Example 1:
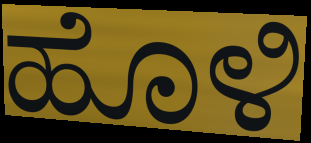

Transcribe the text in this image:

ಹೊಳಿ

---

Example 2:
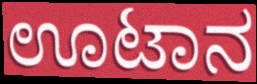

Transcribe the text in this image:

ಊಟಾನ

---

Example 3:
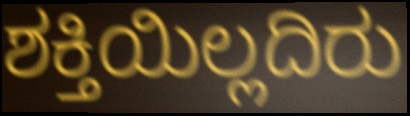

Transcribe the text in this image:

ಶಕ್ತಿಯಿಲ್ಲದಿರು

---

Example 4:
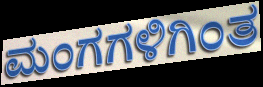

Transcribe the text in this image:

ಮಂಗಗಳಿಗಿಂತ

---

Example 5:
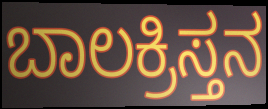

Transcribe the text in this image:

ಬಾಲಕ್ರಿಸ್ತನ